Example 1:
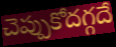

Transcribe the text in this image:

చెప్పుకోదగ్గదే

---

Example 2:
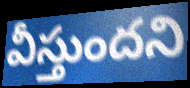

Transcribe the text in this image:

వీస్తుందని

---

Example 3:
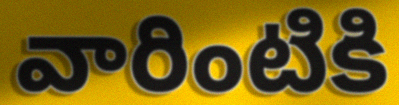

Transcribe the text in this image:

వారింటికి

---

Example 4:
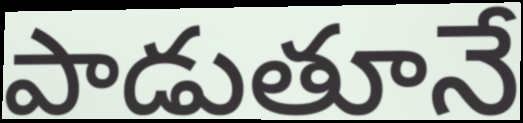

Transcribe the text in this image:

పాడుతూనే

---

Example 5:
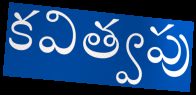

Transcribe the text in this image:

కవిత్వపు